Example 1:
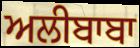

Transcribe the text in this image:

ਅਲੀਬਾਬਾ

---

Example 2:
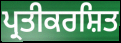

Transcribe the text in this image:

ਪ੍ਰਤੀਕਰਸ਼ਿਤ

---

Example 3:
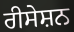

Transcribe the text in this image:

ਰੀਸੇਸ਼ਨ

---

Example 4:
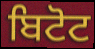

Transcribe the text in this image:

ਬਿਟੋਟ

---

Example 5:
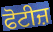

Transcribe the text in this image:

ਫੋਟੀਜ਼